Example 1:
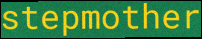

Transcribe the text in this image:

stepmother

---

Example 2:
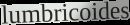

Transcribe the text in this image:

lumbricoides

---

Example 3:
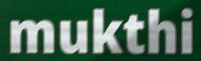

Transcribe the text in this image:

mukthi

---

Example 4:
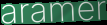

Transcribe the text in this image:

aramer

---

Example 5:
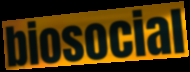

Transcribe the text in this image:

biosocial